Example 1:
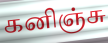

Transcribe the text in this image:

கனிஞ்சு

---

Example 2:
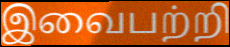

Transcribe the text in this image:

இவைபற்றி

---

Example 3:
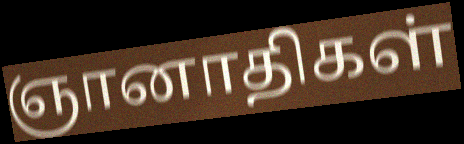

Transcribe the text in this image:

ஞானாதிகள்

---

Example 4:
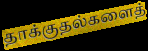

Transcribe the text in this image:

தாக்குதல்களைத்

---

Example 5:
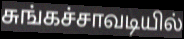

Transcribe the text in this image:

சுங்கச்சாவடியில்